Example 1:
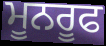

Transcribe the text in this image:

ਮੂਨਰੂਫ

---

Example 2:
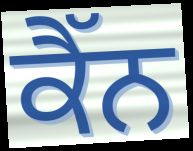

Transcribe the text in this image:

ਕੈੱਨ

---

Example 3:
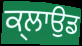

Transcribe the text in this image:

ਕ੍ਲਾਉਡ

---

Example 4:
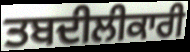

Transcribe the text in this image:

ਤਬਦੀਲੀਕਾਰੀ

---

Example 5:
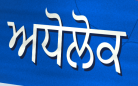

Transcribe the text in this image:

ਅਧੋਲੋਕ